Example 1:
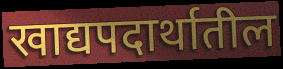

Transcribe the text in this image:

खाद्यपदार्थातील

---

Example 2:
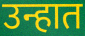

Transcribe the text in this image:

उन्हात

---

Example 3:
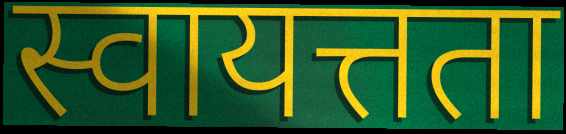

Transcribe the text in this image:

स्वायत्तता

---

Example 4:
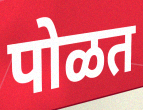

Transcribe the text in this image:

पोळत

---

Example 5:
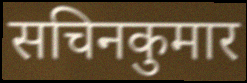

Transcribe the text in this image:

सचिनकुमार